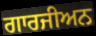
ਗਾਰਜੀਅਨ